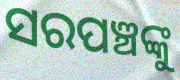
ସରପଞ୍ଚଙ୍କୁ